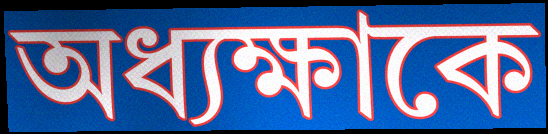
অধ্যক্ষাকে